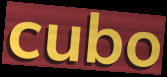
cubo